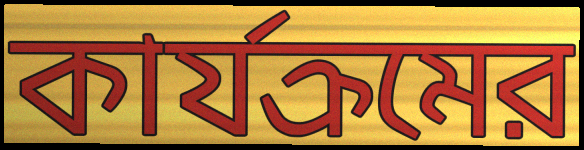
কার্যক্রমের